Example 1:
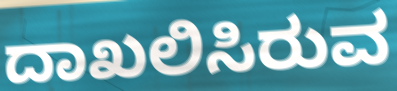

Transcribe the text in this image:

ದಾಖಲಿಸಿರುವ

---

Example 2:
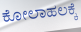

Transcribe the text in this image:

ಕೋಲಾಹಲಕ್ಕೆ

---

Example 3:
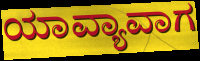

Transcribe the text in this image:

ಯಾವ್ಯಾವಾಗ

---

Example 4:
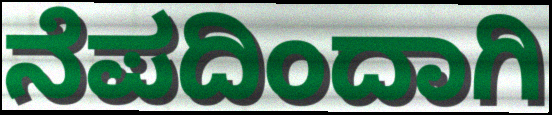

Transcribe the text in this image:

ನೆಪದಿಂದಾಗಿ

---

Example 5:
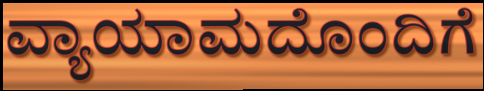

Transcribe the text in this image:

ವ್ಯಾಯಾಮದೊಂದಿಗೆ